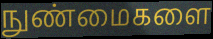
நுண்மைகளை